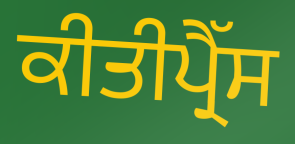
ਕੀਤੀਪ੍ਰੈੱਸ